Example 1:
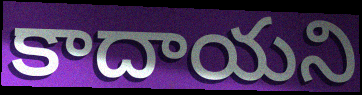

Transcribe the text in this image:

కాదాయని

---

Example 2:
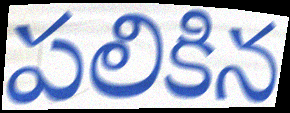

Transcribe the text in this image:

పలికిన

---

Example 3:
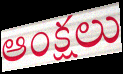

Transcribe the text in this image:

ఆంక్షలు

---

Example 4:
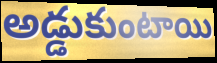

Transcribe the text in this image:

అడ్డుకుంటాయి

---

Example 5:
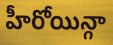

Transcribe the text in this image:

హీరోయిన్గా